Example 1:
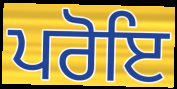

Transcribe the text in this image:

ਪਰੋਇ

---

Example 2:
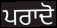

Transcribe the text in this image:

ਪਰਾਦੋ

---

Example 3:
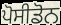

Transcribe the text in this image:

ਪੋਸੀਡੋਨ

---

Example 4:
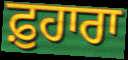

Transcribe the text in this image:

ਫ਼ੁਹਾਰਾ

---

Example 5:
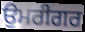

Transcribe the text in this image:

ਉਮਰੀਗਰ